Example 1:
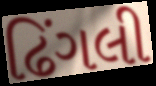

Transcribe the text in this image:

ઢિંગલી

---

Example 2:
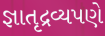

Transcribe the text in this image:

જ્ઞાતૃદ્રવ્યપણે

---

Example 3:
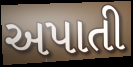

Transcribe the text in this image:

અપાતી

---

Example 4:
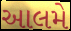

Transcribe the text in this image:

આલમે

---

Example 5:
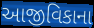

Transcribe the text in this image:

આજીવિકાના